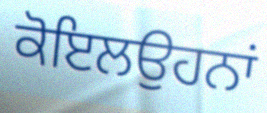
ਕੋਇਲਉਹਨਾਂ